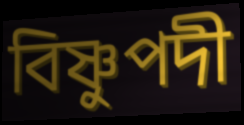
বিষ্ণুপদী